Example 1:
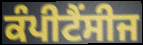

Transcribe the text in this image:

ਕੰਪੀਟੈਂਸੀਜ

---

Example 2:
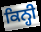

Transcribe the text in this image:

ਕਿਨ੍ਹੀ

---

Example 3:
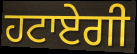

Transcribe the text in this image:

ਹਟਾਏਗੀ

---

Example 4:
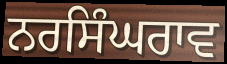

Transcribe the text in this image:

ਨਰਸਿੰਘਰਾਵ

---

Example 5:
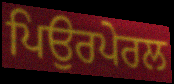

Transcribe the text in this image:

ਪਿਉਰਪੇਰਲ